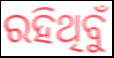
ରହିଥିବୁଁ